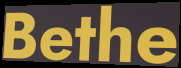
Bethe